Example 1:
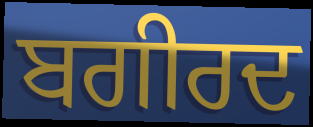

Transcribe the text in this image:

ਬਗੀਰਦ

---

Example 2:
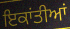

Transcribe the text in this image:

ਇਕਾਂਤੀਆਂ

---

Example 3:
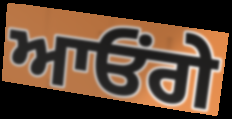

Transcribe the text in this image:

ਆਓਂਗੇ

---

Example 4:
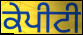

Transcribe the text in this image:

ਕੇਪੀਟੀ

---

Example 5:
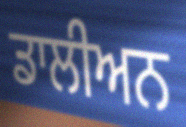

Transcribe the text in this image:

ਡਾਲੀਅਨ